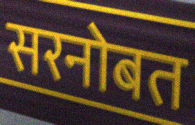
सरनोबत